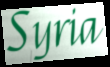
Syria